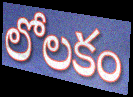
లోలకం